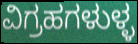
ವಿಗ್ರಹಗಳುಳ್ಳ